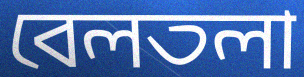
বেলতলা